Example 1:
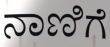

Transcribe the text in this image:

ನಾಣಿಗೆ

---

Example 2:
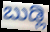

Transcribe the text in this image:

ಬುಡ್ಲಿ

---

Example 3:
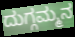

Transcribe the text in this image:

ದುಗ್ಗಮ್ಮನ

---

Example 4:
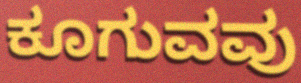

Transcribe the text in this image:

ಕೂಗುವವು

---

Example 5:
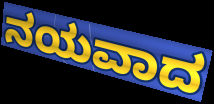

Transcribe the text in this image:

ನಯವಾದ